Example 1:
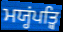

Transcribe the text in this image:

ਮਯ੍ਹਂਪਤ੍ਥਿ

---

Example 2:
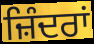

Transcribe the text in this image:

ਜ਼ਿੰਦਰਾਂ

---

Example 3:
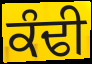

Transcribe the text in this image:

ਕੰਢੀ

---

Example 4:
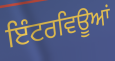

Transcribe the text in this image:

ਇੰਟਰਵਿਊਆਂ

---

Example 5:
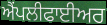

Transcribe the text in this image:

ਐੰਪਲੀਫਾਈਅਰ